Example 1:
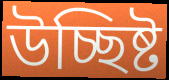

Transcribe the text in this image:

উচ্ছিষ্ট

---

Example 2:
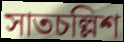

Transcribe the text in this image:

সাতচল্লিশ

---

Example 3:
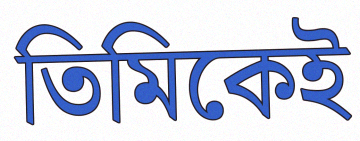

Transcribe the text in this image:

তিমিকেই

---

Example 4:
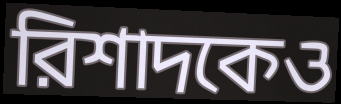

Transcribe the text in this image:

রিশাদকেও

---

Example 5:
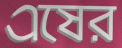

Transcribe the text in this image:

এষের